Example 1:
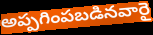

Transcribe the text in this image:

అప్పగింపబడినవారై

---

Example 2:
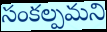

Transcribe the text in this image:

సంకల్పమని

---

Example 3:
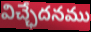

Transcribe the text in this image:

విచ్ఛేదనము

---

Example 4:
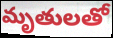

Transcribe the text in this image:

మృతులతో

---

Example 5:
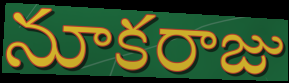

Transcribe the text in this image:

నూకరాజు